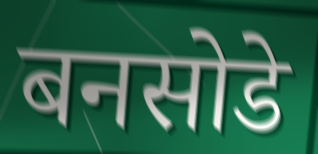
बनसोडे